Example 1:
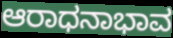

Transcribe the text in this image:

ಆರಾಧನಾಭಾವ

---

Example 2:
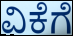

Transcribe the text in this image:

ವಿಕೆಗೆ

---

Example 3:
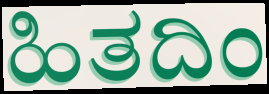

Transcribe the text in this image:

ಹಿತದಿಂ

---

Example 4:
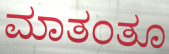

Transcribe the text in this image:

ಮಾತಂತೂ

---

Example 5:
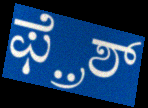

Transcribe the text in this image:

ಫ಼್ರೆಶ್